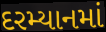
દરમ્યાનમાં